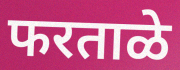
फरताळे